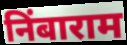
निंबाराम